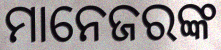
ମାନେଜରଙ୍କ